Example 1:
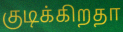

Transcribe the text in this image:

குடிக்கிறதா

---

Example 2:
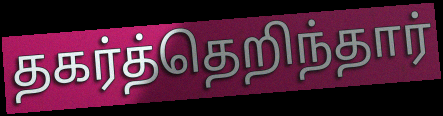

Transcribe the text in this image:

தகர்த்தெறிந்தார்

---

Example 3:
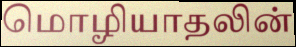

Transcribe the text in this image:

மொழியாதலின்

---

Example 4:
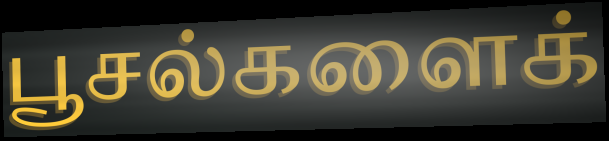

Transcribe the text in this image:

பூசல்களைக்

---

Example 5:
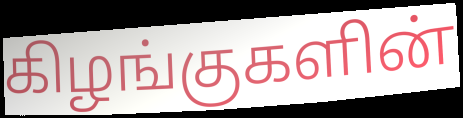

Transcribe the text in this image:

கிழங்குகளின்